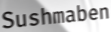
Sushmaben